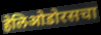
हेलिओडोरसचा